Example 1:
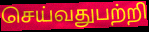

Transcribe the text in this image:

செய்வதுபற்றி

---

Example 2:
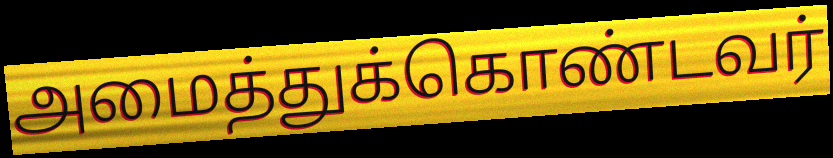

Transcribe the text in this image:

அமைத்துக்கொண்டவர்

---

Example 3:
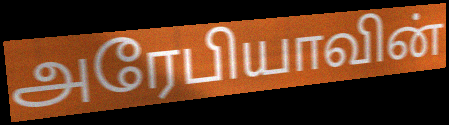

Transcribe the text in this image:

அரேபியாவின்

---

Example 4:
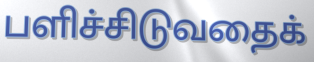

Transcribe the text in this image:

பளிச்சிடுவதைக்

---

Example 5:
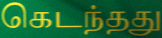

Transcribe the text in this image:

கெடந்தது